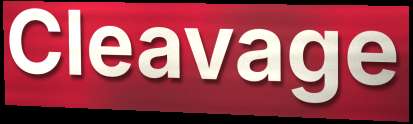
Cleavage